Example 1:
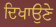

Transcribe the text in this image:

ਦਿਖਾਉਣੇ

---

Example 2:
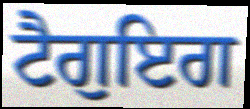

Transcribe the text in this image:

ਟੈਗੁਇਗ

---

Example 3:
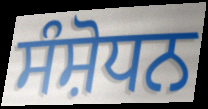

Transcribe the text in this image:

ਸੰਸ਼ੋਧਨ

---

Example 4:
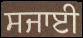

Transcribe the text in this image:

ਸਜਾਈ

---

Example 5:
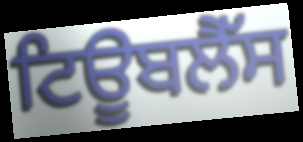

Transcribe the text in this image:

ਟਿਊਬਲੈੱਸ